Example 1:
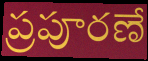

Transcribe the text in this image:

ప్రపూరణే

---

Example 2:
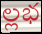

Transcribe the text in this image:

ల్లభ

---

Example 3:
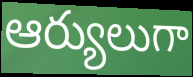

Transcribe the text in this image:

ఆర్యులుగా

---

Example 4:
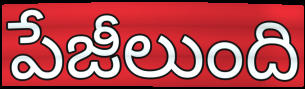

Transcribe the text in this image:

పేజీలుంది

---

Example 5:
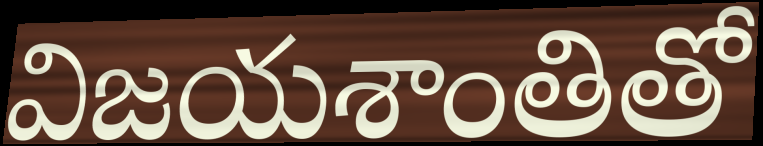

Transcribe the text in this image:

విజయశాంతితో